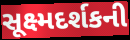
સૂક્ષ્મદર્શકની